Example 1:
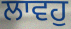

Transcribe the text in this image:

ਲਾਵਹੁ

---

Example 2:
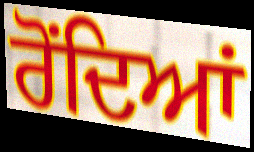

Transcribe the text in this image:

ਰੋਂਦਿਆਂ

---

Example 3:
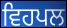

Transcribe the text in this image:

ਵਿਹਪਲ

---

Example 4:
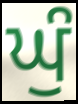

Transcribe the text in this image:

ਘੁੰ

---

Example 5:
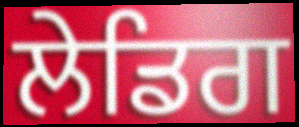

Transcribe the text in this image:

ਲੇਡਿਗ